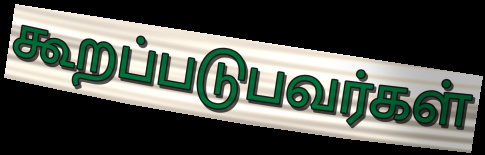
கூறப்படுபவர்கள்